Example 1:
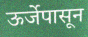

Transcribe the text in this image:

ऊर्जेपासून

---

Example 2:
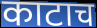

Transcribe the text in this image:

काटाच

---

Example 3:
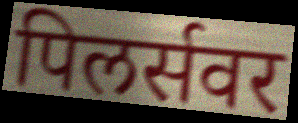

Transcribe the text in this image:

पिलर्सवर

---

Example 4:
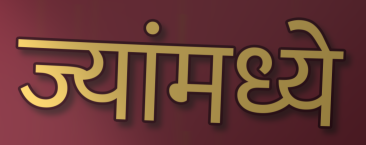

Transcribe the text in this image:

ज्यांमध्ये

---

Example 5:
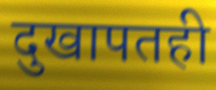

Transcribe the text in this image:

दुखापतही